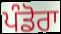
ਪੰਡੋਰਾ